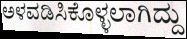
ಅಳವಡಿಸಿಕೊಳ್ಳಲಾಗಿದ್ದು